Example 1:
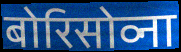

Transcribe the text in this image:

बोरिसोव्ना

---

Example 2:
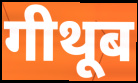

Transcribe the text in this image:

गीथूब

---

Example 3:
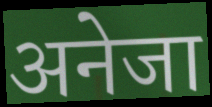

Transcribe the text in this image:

अनेजा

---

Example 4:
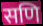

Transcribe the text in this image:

सणि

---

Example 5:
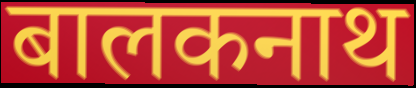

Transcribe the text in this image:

बालकनाथ